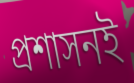
প্রশাসনই